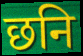
छनि